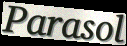
Parasol